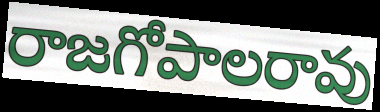
రాజగోపాలరావు